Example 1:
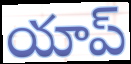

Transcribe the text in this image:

యాప్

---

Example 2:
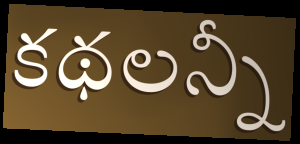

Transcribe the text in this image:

కథలన్నీ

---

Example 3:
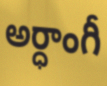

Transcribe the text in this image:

అర్ధాంగీ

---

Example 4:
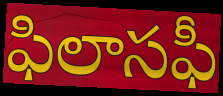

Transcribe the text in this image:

ఫిలాసఫీ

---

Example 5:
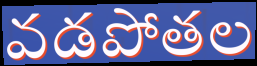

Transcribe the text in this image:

వడపోతల